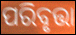
ପରିବୃତ୍ତା